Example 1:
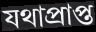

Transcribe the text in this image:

যথাপ্রাপ্ত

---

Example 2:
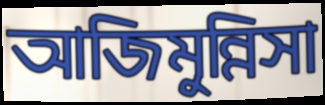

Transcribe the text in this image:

আজিমুন্নিসা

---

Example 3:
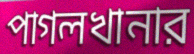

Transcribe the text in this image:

পাগলখানার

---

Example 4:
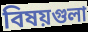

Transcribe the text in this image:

বিষয়গুলা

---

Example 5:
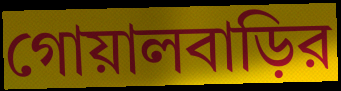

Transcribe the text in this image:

গোয়ালবাড়ির